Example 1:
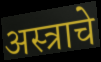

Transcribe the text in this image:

अस्त्राचे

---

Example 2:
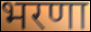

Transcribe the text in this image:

भरणा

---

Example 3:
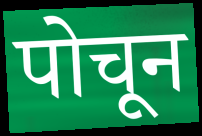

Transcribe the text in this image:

पोचून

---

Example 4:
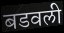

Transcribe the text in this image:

बडवली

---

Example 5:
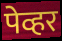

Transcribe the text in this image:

पेव्हर